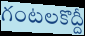
గంటలకొద్దీ